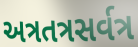
અત્રતત્રસર્વત્ર